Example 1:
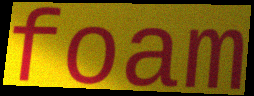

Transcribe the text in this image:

foam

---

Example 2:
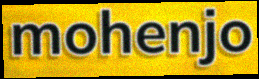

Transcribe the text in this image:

mohenjo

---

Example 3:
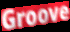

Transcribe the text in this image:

Groove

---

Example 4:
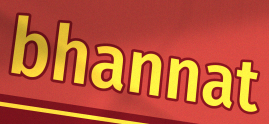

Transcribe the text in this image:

bhannat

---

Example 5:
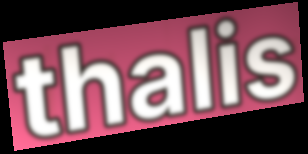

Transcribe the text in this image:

thalis